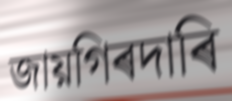
জায়গিৰদাৰি